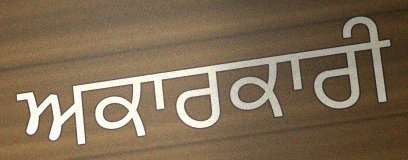
ਅਕਾਰਕਾਰੀ